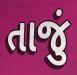
તાજું